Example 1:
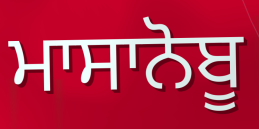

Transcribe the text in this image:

ਮਾਸਾਨੋਬੂ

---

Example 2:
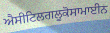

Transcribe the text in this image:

ਐਸੀਟਿਲਗਲੂਕੋਸਾਮਾਈਨ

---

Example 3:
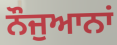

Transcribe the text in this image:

ਨੌਜੁਆਨਾਂ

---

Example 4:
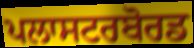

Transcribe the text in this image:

ਪਲਾਸਟਰਬੋਰਡ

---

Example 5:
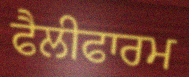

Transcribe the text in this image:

ਫੈਲੀਫਾਰਮ